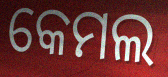
କେମଲ